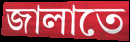
জালাতে